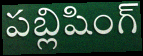
పబ్లిషింగ్